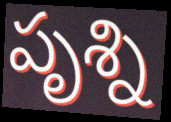
పృశ్ని